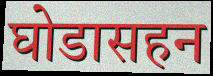
घोडासहन